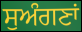
ਸੁਅੰਗਣਾਂ